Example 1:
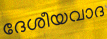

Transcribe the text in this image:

ദേശീയവാദ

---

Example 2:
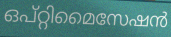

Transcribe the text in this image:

ഒപ്റ്റിമൈസേഷൻ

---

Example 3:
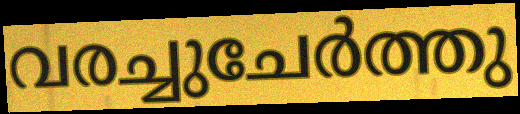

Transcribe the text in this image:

വരച്ചുചേർത്തു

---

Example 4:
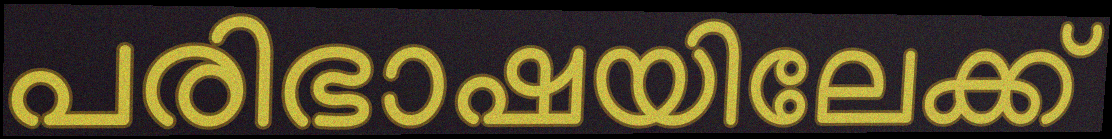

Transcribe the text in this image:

പരിഭാഷയിലേക്ക്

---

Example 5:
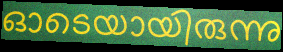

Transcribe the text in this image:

ഓടെയായിരുന്നു